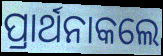
ପ୍ରାର୍ଥନାକଲେ